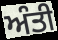
ਅੰਤੀ